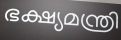
ഭക്ഷ്യമന്ത്രി